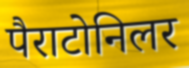
पैराटोनिलर